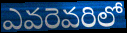
ఎవరెవరిలో